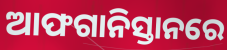
ଆଫଗାନିସ୍ତାନରେ